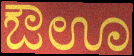
ಔಊ